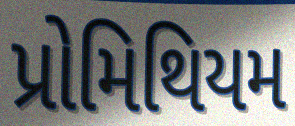
પ્રોમિથિયમ